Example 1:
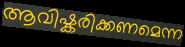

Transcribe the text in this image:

ആവിഷ്കരിക്കണമെന്ന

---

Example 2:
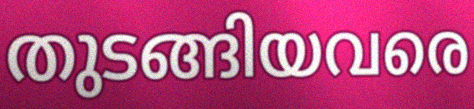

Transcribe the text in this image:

തുടങ്ങിയവരെ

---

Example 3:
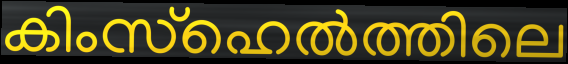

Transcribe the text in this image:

കിംസ്ഹെൽത്തിലെ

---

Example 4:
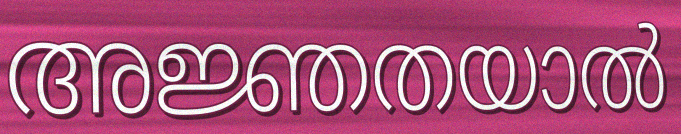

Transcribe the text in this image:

അജ്ഞതയാൽ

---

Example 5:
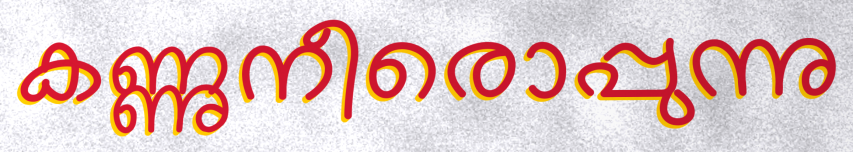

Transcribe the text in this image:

കണ്ണുനീരൊപ്പുന്നു